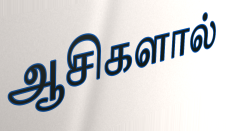
ஆசிகளால்